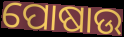
ପୋଷାଉ